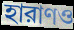
হারাণও